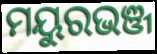
ମୟୁରଭଞ୍ଜ